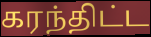
கரந்திட்ட